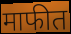
माफीत